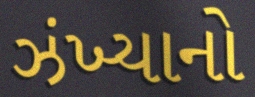
ઝંખ્યાનો